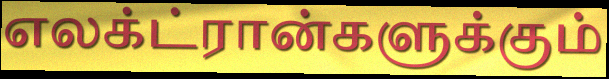
எலக்ட்ரான்களுக்கும்